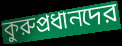
কুরুপ্রধানদের